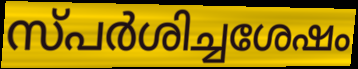
സ്പർശിച്ചശേഷം